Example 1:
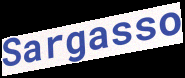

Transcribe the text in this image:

Sargasso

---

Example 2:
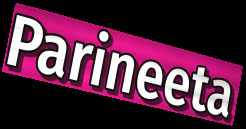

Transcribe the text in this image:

Parineeta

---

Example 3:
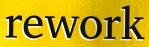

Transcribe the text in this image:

rework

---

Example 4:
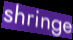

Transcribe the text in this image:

shringe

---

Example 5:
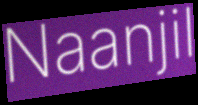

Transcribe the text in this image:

Naanjil